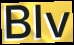
Blv